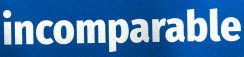
incomparable